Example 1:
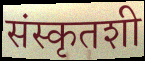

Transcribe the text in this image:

संस्कृतशी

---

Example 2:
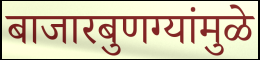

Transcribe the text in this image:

बाजारबुणग्यांमुळे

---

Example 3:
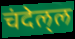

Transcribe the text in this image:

चंदेल्ल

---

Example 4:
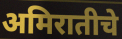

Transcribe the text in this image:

अमिरातीचे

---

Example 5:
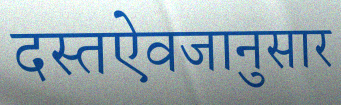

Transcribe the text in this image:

दस्तऐवजानुसार